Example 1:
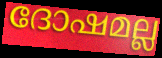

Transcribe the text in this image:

ദോഷമല്ല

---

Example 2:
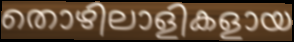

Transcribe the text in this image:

തൊഴിലാളികളായ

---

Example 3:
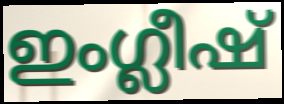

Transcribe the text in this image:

ഇംഗ്ലീഷ്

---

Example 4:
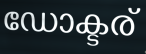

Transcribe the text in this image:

ഡോക്ടര്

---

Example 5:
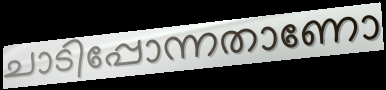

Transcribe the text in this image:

ചാടിപ്പോന്നതാണോ